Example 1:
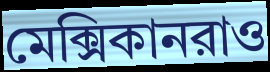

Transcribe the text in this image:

মেক্সিকানরাও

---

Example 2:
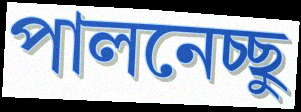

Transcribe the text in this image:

পালনেচ্ছু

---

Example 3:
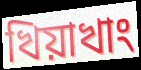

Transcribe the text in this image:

খিয়াখাং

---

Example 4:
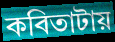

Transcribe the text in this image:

কবিতাটায়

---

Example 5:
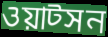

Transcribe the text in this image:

ওয়াট্সন